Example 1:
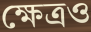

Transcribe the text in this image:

ক্ষেত্রও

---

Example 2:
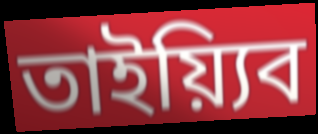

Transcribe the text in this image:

তাইয়্যিব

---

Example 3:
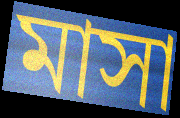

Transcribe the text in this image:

মাসা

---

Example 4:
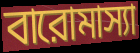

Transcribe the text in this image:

বারোমাস্যা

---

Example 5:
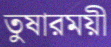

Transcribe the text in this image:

তুষারময়ী